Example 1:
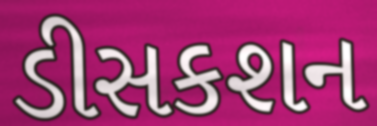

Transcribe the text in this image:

ડીસકશન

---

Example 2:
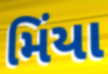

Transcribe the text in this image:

મિંયા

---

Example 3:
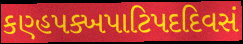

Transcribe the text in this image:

કણ્હપક્ખપાટિપદદિવસં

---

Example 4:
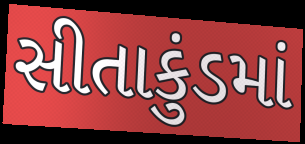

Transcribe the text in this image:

સીતાકુંડમાં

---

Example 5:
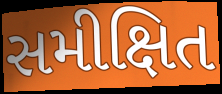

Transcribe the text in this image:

સમીક્ષિત